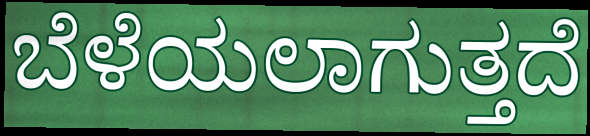
ಬೆಳೆಯಲಾಗುತ್ತದೆ